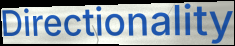
Directionality